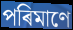
পৰিমাণে